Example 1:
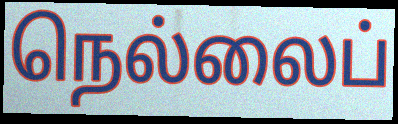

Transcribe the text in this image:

நெல்லைப்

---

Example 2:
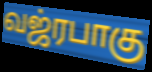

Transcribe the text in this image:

வஜ்ரபாகு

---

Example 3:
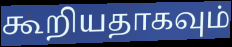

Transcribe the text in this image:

கூறியதாகவும்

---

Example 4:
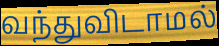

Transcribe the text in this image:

வந்துவிடாமல்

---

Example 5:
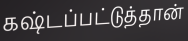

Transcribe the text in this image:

கஷ்டப்பட்டுத்தான்